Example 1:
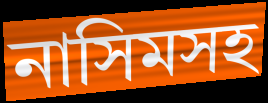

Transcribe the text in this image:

নাসিমসহ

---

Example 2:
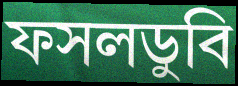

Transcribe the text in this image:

ফসলডুবি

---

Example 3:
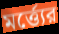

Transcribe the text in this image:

মর্ত্ত্যের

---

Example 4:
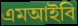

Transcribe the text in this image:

এমআইবি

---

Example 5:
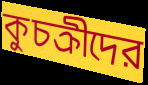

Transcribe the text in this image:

কুচক্রীদের